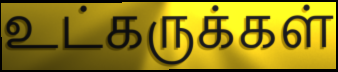
உட்கருக்கள்